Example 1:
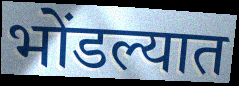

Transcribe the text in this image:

भोंडल्यात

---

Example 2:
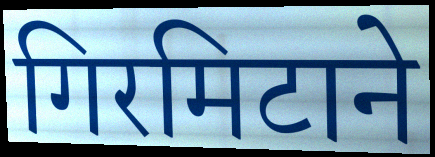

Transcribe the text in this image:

गिरमिटाने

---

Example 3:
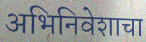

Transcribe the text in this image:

अभिनिवेशाचा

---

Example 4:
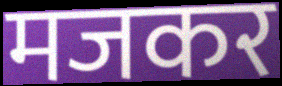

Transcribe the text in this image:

मजकर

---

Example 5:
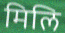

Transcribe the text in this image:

मिलि